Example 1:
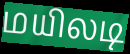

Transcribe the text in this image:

மயிலடி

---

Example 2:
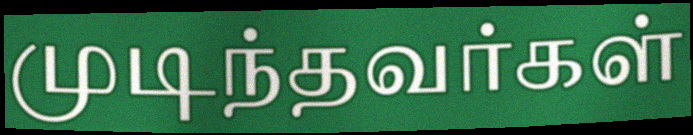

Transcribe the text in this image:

முடிந்தவர்கள்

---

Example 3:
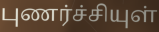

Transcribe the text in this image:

புணர்ச்சியுள்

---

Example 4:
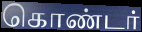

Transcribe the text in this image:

கொண்டர்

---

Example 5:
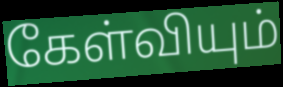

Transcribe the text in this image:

கேள்வியும்